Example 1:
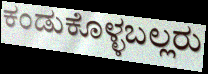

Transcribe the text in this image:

ಕಂಡುಕೊಳ್ಳಬಲ್ಲರು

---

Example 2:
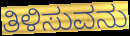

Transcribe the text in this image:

ತಿಳಿಸುವನು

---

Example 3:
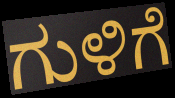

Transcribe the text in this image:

ಗುಳಿಗೆ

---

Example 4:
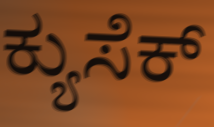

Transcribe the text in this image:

ಕ್ಯುಸೆಕ್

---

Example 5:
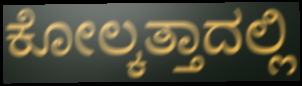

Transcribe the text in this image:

ಕೋಲ್ಕತ್ತಾದಲ್ಲಿ